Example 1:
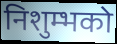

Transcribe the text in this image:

निशुम्भको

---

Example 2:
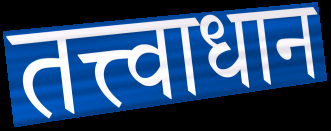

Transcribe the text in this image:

तत्त्वाधान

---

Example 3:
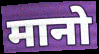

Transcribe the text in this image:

मानो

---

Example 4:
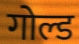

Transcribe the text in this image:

गोल्ड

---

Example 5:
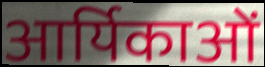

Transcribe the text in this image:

आर्यिकाओं